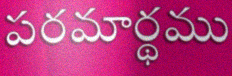
పరమార్థము